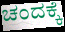
ಚಂದಕ್ಕೆ